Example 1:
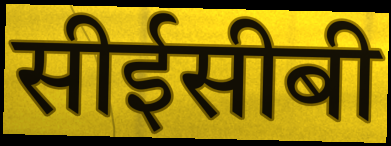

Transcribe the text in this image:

सीईसीबी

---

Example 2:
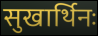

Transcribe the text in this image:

सुखार्थिनः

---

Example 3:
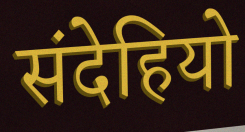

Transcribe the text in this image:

संदेहियो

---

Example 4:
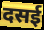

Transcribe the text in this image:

दसई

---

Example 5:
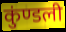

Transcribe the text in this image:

कुंण्डली